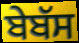
ਬੇਬੱਸ